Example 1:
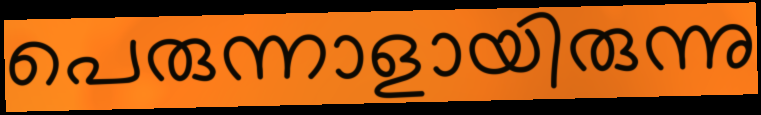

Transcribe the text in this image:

പെരുന്നാളായിരുന്നു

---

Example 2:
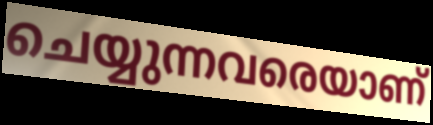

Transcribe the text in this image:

ചെയ്യുന്നവരെയാണ്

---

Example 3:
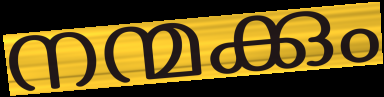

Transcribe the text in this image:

നന്മക്കും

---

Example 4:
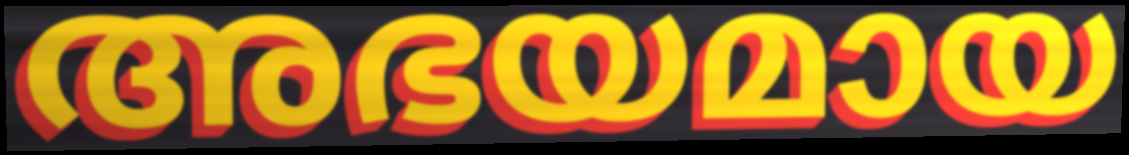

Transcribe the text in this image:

അഭയമായ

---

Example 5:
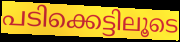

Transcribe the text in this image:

പടിക്കെട്ടിലൂടെ